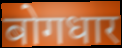
बोगधार